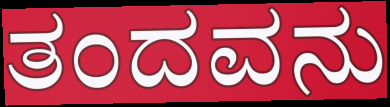
ತಂದವನು